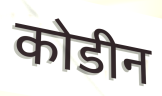
कोडीन